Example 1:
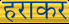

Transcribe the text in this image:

हराकर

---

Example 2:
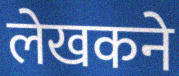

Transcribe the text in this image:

लेखकने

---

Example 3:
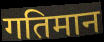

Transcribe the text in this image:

गतिमान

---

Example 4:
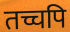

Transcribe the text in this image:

तच्चपि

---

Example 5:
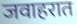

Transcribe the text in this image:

जवाहरात